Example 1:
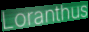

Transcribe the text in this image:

Loranthus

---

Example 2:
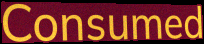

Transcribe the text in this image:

Consumed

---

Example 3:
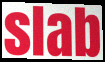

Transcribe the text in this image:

slab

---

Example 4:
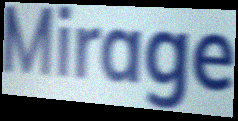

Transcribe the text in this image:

Mirage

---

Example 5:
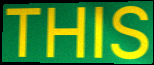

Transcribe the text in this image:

THIS